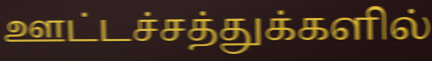
ஊட்டச்சத்துக்களில்